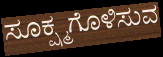
ಸೂಕ್ಷ್ಮಗೊಳಿಸುವ